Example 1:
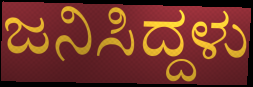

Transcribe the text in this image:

ಜನಿಸಿದ್ದಳು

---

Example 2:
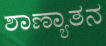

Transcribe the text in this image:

ಶಾಣ್ಯಾತನ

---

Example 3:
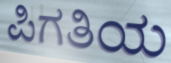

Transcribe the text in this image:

ಪಿಗತಿಯ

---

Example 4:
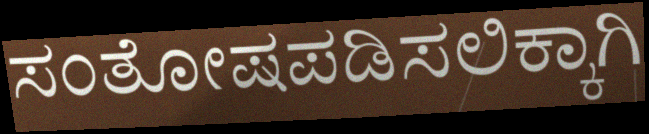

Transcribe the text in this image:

ಸಂತೋಷಪಡಿಸಲಿಕ್ಕಾಗಿ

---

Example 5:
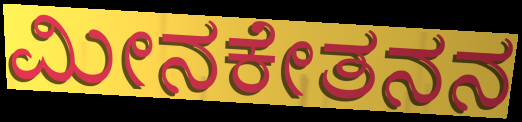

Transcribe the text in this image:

ಮೀನಕೇತನನ